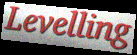
Levelling